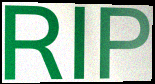
RIP